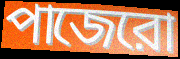
পাজেরো